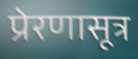
प्रेरणासूत्र